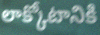
లాక్కోటానికి